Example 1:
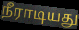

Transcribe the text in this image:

நீராடியது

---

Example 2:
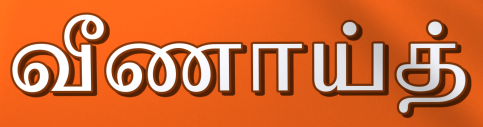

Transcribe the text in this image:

வீணாய்த்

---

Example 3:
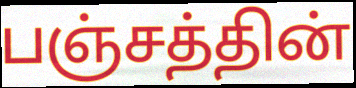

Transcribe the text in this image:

பஞ்சத்தின்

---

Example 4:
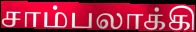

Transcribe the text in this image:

சாம்பலாக்கி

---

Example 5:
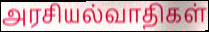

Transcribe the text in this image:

அரசியல்வாதிகள்